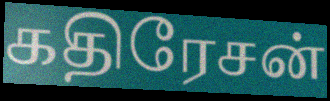
கதிரேசன்